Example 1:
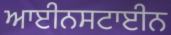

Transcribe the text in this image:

ਆਈਨਸਟਾਈਨ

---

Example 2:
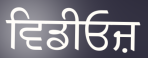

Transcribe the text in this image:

ਵਿਡੀਓਜ਼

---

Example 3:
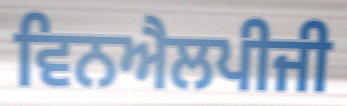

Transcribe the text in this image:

ਵਿਨਐਲਪੀਜੀ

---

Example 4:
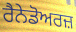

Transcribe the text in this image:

ਰੈਨੇਡੋਅਰਜ਼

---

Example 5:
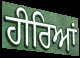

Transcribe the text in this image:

ਹੀਰਿਆਂ